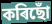
কৰিছোঁ